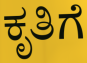
ಕೃತಿಗೆ